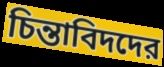
চিন্তাবিদদের